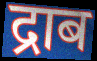
द्राब